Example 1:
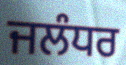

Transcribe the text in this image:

ਜਲੰਧਰ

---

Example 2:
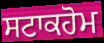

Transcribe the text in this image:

ਸਟਾਕਹੋਮ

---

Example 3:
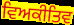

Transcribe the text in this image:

ਵਿਅਕੀਤਿਵ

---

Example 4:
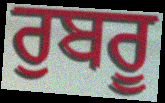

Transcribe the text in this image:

ਰੁਬਰੂ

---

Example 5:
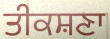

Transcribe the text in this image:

ਤੀਕਸ਼ਣਾ